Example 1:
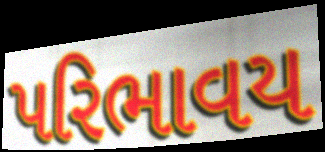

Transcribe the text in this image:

પરિભાવય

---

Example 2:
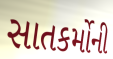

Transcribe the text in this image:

સાતકર્મોની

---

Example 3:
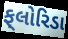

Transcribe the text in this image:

ફ્‌લોરિડા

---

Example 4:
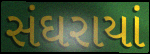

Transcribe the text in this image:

સંઘરાયાં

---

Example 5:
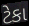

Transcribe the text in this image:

ટેકા